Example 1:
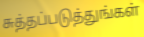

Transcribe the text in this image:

சுத்தப்படுத்துங்கள்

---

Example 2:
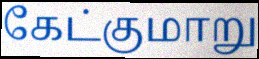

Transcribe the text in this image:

கேட்குமாறு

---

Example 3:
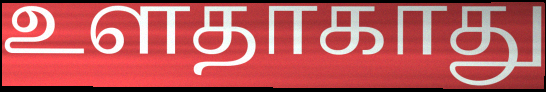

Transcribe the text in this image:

உளதாகாது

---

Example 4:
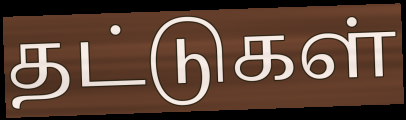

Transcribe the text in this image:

தட்டுகள்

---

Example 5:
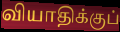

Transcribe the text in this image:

வியாதிக்குப்